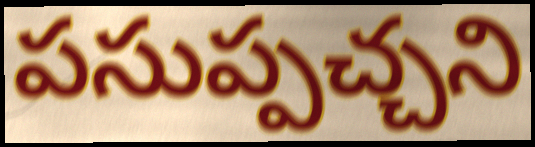
పసుప్పచ్చని